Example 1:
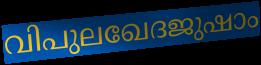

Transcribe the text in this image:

വിപുലഖേദജുഷാം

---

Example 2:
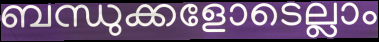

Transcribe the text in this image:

ബന്ധുക്കളോടെല്ലാം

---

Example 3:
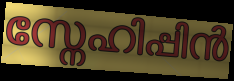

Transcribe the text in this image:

സ്നേഹിപ്പിൻ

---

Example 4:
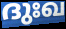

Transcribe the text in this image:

ദുഃഖ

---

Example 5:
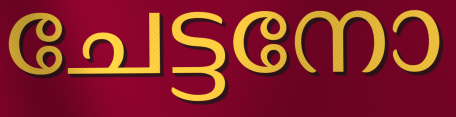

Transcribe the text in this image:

ചേട്ടനോ